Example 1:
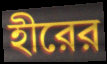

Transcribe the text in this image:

হীরের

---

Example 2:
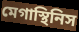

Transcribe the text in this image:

মেগাস্থিনিস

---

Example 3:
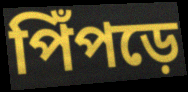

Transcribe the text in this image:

পিঁপড়ে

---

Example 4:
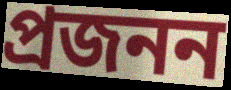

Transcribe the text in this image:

প্রজনন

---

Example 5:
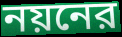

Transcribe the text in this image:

নয়নের